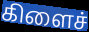
கிளைச்